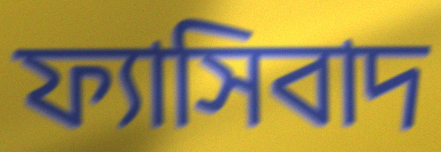
ফ্যাসিবাদ